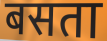
बसता